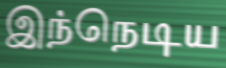
இந்நெடிய